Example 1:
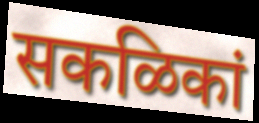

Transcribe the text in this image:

सकळिकां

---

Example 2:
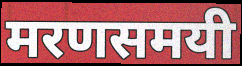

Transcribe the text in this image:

मरणसमयी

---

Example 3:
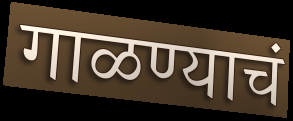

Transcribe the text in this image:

गाळण्याचं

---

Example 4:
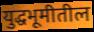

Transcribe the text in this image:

युद्धभूमीतील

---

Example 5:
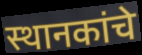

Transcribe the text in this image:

स्थानकांचे